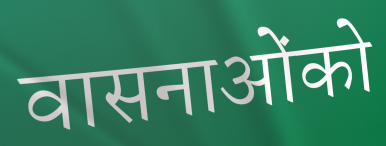
वासनाओंको